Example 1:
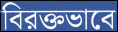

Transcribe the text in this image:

বিরক্তভাবে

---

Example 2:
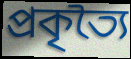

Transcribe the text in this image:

প্রকৃত্যৈ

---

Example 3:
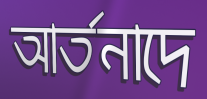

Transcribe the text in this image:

আর্তনাদে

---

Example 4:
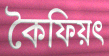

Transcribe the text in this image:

কৈফিয়ৎ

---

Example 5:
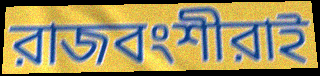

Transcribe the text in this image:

রাজবংশীরাই